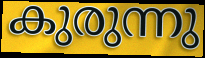
കുരുന്നു